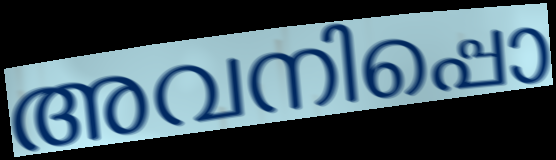
അവനിപ്പൊ